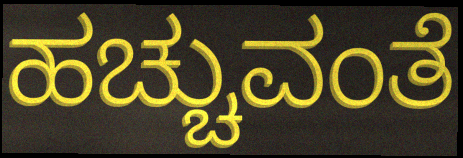
ಹಚ್ಚುವಂತೆ